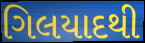
ગિલયાદથી